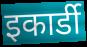
इकार्डी